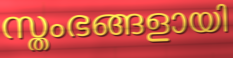
സ്തംഭങ്ങളായി